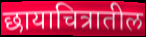
छायाचित्रातील